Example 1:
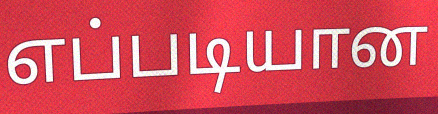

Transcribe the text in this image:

எப்படியான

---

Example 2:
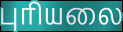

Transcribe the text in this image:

புரியலை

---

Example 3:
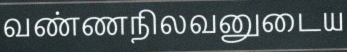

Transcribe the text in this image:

வண்ணநிலவனுடைய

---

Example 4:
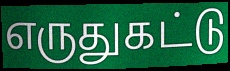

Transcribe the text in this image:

எருதுகட்டு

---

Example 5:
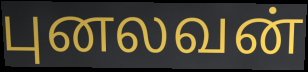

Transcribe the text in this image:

புனலவன்